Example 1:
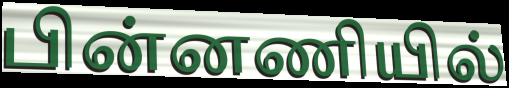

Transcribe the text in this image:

பின்னணியில்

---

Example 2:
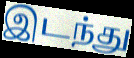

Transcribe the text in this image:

இடந்து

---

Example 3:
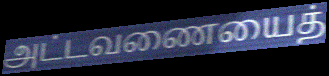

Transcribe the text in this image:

அட்டவணையைத்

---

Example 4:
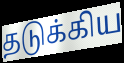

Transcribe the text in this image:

தடுக்கிய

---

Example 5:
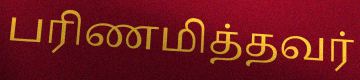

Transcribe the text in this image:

பரிணமித்தவர்